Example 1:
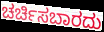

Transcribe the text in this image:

ಚರ್ಚಿಸಬಾರದು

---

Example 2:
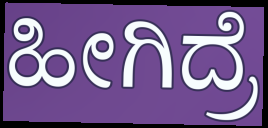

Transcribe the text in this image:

ಹೀಗಿದ್ರೆ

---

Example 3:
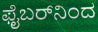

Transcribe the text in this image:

ಫೈಬರ್‌ನಿಂದ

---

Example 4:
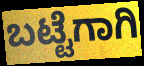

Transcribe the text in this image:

ಬಟ್ಟೆಗಾಗಿ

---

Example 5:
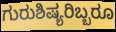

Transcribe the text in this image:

ಗುರುಶಿಷ್ಯರಿಬ್ಬರೂ